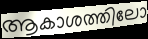
ആകാശത്തിലോ